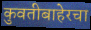
कुवतीबाहेरचा